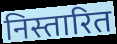
निस्तारित